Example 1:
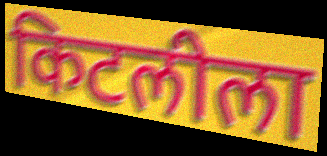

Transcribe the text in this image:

किटलीला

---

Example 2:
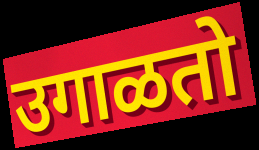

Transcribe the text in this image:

उगाळतो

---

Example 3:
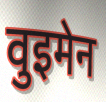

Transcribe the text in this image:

वुइमेन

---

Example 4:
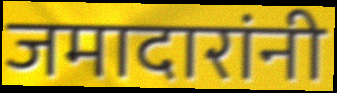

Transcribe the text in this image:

जमादारांनी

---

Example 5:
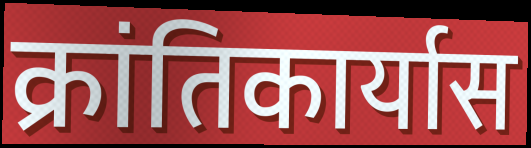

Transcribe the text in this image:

क्रांतिकार्यास